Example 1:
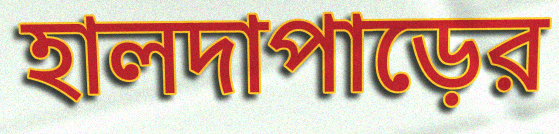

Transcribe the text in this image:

হালদাপাড়ের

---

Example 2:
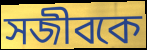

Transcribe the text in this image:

সজীবকে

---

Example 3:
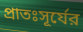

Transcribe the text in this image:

প্রাতঃসূর্যের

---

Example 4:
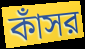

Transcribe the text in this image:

কাঁসর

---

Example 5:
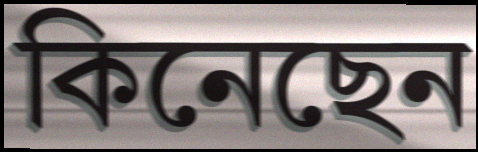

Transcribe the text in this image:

কিনেছেন